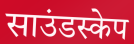
साउंडस्केप